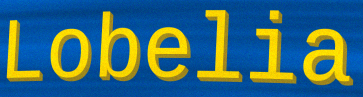
Lobelia